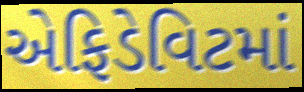
એફિડેવિટમાં